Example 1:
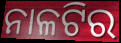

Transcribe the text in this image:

ନାଳଟିର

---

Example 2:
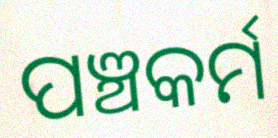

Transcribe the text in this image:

ପଞ୍ଚକର୍ମ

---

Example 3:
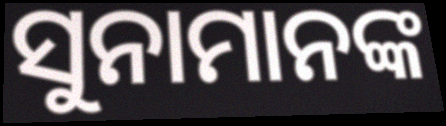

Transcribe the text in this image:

ସୁନାମାନଙ୍କ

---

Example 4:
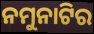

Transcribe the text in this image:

ନମୁନାଟିର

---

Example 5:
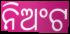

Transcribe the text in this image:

ନିଅଂଟ